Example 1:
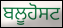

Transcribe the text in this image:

ਬਲੂਹੋਸਟ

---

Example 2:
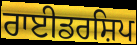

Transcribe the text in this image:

ਰਾਈਡਰਸ਼ਿਪ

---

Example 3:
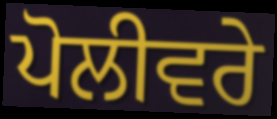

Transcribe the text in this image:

ਪੋਲੀਵਰੇ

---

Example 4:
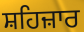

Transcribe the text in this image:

ਸ਼ਹਿਜ਼ਾਰ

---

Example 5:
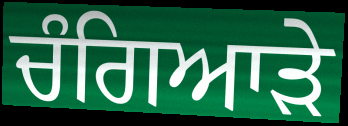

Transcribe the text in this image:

ਚੰਗਿਆੜੇ